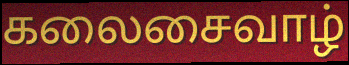
கலைசைவாழ்